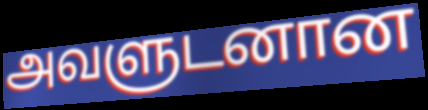
அவளுடனான